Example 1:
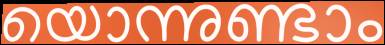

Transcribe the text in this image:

യൊന്നുണ്ടാം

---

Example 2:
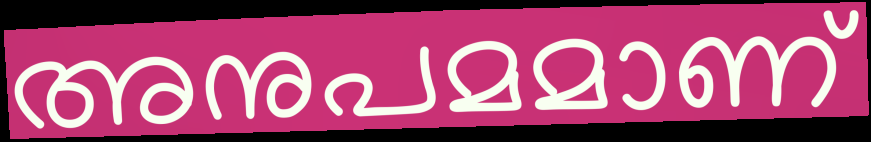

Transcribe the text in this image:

അനുപമമാണ്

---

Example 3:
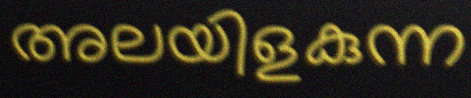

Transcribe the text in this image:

അലയിളകുന്ന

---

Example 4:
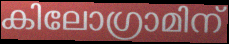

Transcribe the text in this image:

കിലോഗ്രാമിന്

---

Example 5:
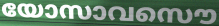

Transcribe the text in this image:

യോസാവസൌ